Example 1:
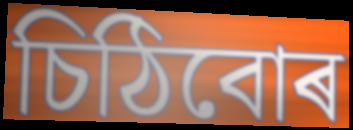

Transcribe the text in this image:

চিঠিবোৰ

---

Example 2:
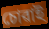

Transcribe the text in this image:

চোৱাই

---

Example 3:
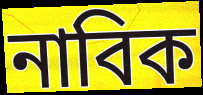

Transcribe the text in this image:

নাবিক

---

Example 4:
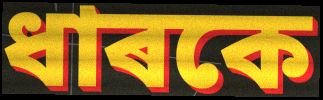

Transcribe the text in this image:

ধাৰকে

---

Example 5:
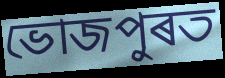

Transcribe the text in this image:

ভোজপুৰত